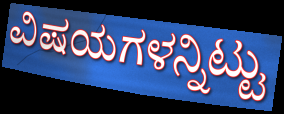
ವಿಷಯಗಳನ್ನಿಟ್ಟು